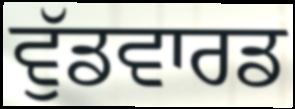
ਵੁੱਡਵਾਰਡ